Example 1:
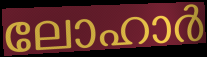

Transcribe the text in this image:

ലോഹാർ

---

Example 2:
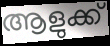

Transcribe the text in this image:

ആളുക്ക്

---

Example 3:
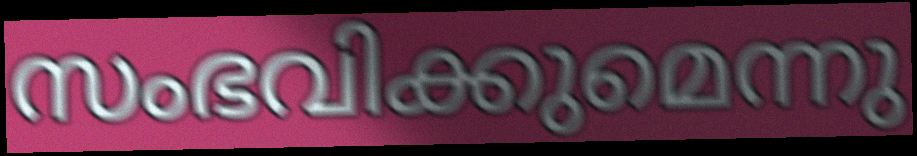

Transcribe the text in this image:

സംഭവിക്കുമെന്നു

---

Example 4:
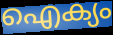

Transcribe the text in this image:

ഐക്യം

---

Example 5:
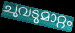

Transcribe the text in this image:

ചുവടുമാറ്റം